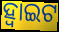
ହ୍ୱାଇଟ